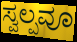
ಸ್ವಲ್ಪವೂ